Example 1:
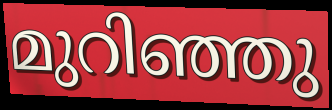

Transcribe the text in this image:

മുറിഞ്ഞു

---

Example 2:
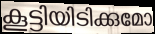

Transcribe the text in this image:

കൂട്ടിയിടിക്കുമോ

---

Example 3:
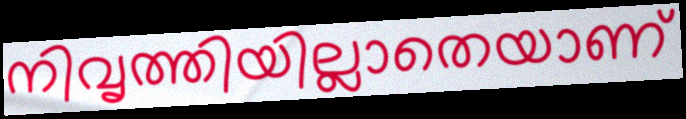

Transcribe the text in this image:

നിവൃത്തിയില്ലാതെയാണ്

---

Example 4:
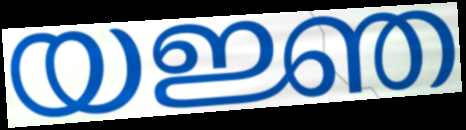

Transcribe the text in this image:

യജ്ഞ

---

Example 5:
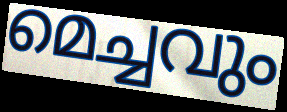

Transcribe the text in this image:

മെച്ചവും